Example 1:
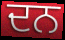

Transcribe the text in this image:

ਦਨ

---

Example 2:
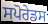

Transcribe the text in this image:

ਸਪੋਰੇਡਸ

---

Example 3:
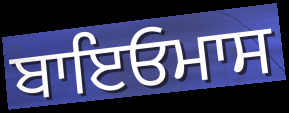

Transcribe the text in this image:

ਬਾਇਓਮਾਸ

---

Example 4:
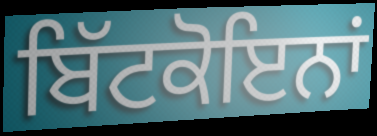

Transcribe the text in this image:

ਬਿੱਟਕੋਇਨਾਂ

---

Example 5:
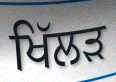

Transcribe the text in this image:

ਖਿੱਲੜ